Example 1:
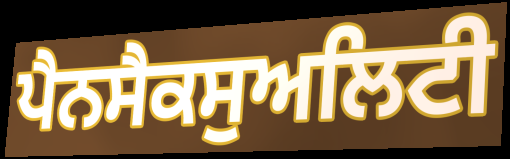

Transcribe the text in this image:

ਪੈਨਸੈਕਸੁਅਲਿਟੀ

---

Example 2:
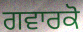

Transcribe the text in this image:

ਗਵਾਰਕੋ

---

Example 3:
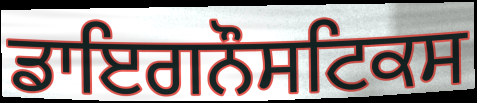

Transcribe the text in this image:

ਡਾਇਗਨੌਸਟਿਕਸ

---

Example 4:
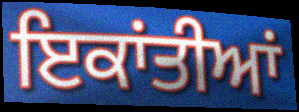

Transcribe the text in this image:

ਇਕਾਂਤੀਆਂ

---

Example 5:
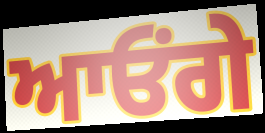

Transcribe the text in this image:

ਆਓਂਗੇ